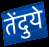
तेंदुये